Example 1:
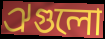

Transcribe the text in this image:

ঐগুলো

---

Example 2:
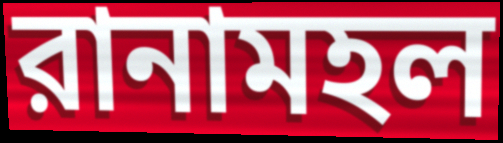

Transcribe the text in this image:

রানামহল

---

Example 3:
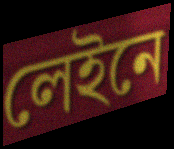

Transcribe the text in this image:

লেইনে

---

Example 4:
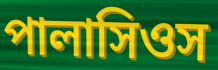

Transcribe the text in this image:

পালাসিওস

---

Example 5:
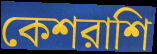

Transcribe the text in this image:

কেশরাশি